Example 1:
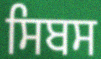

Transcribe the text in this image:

ਸਿਬਸ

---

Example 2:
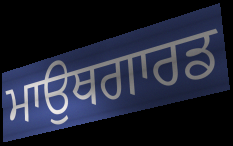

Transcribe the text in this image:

ਮਾਉਥਗਾਰਡ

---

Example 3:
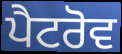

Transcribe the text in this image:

ਪੈਟਰੋਵ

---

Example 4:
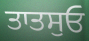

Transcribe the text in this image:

ਤਾਤਸੁਓ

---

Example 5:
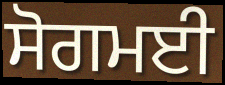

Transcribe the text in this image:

ਸੋਗਮਈ